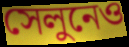
সেলুনেও